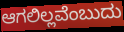
ಆಗಲಿಲ್ಲವೆಂಬುದು